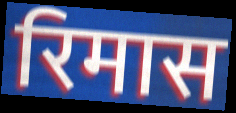
रिमास